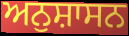
ਅਨੁਸ਼ਾਸਨ